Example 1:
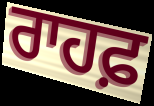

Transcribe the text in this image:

ਰਾਹਫ਼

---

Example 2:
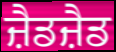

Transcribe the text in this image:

ਜ਼ੈਡਜ਼ੈਡ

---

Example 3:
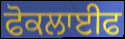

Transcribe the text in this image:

ਫੋਕਲਾਈਫ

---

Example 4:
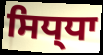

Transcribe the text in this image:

ਸਿਧ੍ਧਾ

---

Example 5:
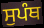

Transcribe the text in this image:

ਸੁਪੰਥ